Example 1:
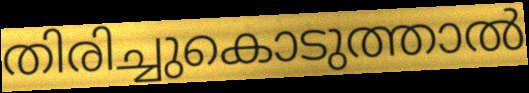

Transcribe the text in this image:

തിരിച്ചുകൊടുത്താൽ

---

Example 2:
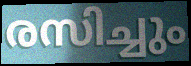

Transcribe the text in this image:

രസിച്ചും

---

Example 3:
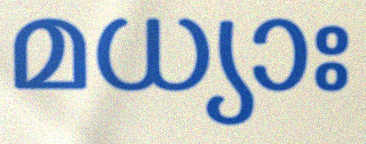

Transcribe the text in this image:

മധ്യാഃ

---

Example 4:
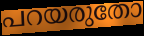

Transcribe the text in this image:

പറയരുതോ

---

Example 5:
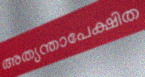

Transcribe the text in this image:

അത്യന്താപേക്ഷിത